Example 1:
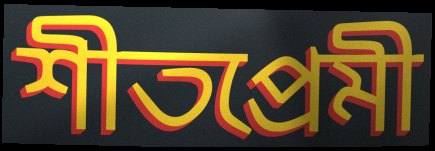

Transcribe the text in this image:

শীতপ্রেমী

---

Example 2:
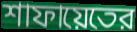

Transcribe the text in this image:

শাফায়েতের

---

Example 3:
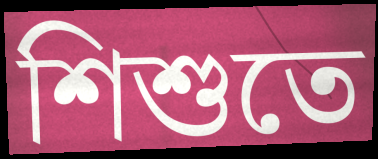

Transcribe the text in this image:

শিশুতে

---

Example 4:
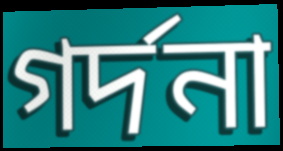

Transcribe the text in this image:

গর্দনা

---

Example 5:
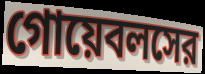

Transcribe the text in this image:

গোয়েবলসের